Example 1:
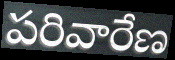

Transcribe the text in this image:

పరివారేణ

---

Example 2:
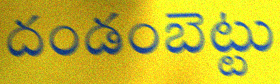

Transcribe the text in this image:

దండంబెట్టు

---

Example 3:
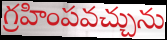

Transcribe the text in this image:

గ్రహింపవచ్చును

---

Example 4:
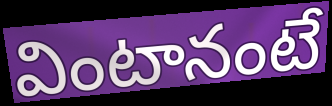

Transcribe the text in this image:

వింటానంటే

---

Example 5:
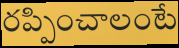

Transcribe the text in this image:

రప్పించాలంటే